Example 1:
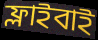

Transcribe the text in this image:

ফ্লাইবাই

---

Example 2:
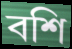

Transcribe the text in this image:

বশি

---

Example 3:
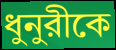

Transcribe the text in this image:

ধুনুরীকে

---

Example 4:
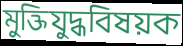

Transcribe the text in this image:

মুক্তিযুদ্ধবিষয়ক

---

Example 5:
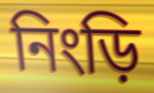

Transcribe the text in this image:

নিংড়ি